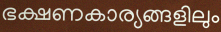
ഭക്ഷണകാര്യങ്ങളിലും